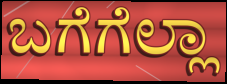
ಬಗೆಗೆಲ್ಲಾ